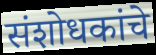
संशोधकांचे